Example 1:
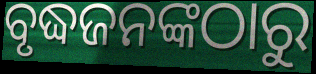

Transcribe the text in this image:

ବୃଦ୍ଧଜନଙ୍କଠାରୁ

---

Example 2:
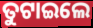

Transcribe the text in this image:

ତୁଟାଇଲେ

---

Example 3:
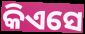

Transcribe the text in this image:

କିଏସେ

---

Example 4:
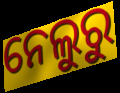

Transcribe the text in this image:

ନେଲୁରୁ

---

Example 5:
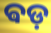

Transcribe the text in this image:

ଵଡ଼